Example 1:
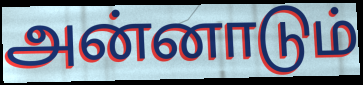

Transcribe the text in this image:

அன்னாடும்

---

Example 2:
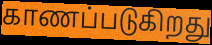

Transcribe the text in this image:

காணப்படுகிறது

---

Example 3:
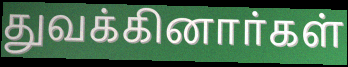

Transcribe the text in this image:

துவக்கினார்கள்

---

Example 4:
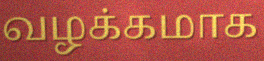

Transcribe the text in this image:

வழக்கமாக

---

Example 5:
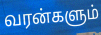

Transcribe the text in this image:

வரன்களும்